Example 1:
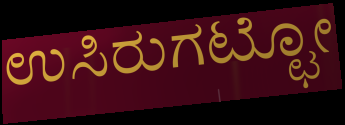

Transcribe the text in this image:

ಉಸಿರುಗಟ್ಟೋ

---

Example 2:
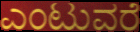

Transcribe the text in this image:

ಎಂಟುವರೆ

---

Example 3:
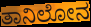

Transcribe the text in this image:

ತಾನಿಲೋನ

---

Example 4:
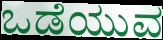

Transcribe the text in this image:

ಒಡೆಯುವ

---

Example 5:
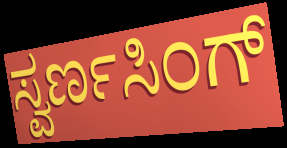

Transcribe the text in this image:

ಸ್ವರ್ಣಸಿಂಗ್